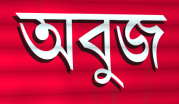
অবুজ